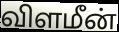
விளமீன்